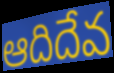
ఆదిదేవ